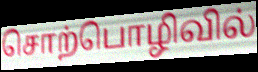
சொற்பொழிவில்